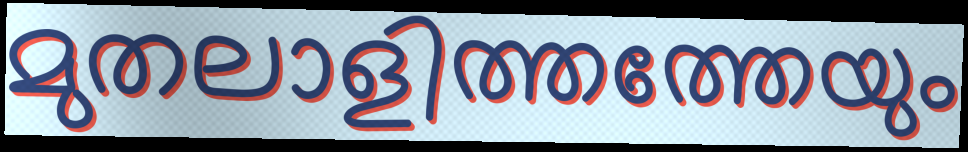
മുതലാളിത്തത്തേയും